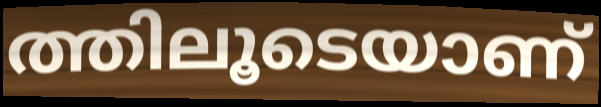
ത്തിലൂടെയാണ്